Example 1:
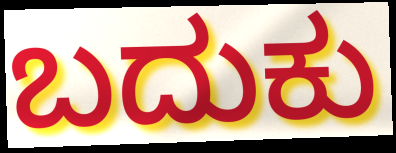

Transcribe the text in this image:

ಬದುಕು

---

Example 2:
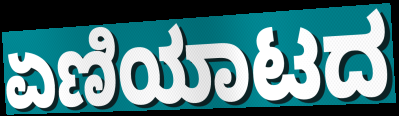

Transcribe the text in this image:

ಏಣಿಯಾಟದ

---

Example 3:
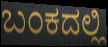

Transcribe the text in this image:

ಬಂಕದಲ್ಲಿ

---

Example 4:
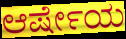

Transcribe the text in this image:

ಆರ್ಷೇಯ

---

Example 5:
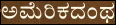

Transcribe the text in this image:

ಅಮೆರಿಕದಂಥ